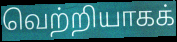
வெற்றியாகக்